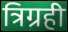
त्रिग्रही